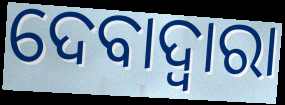
ଦେବାଦ୍ବାରା